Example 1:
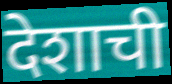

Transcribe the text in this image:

देशाची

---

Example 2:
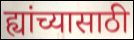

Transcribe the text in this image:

ह्यांच्यासाठी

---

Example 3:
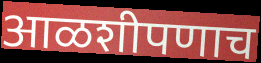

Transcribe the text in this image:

आळशीपणाच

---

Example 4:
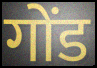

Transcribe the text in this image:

गोंड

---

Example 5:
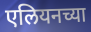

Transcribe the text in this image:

एलियनच्या